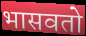
भासवतो